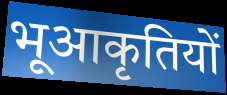
भूआकृतियों